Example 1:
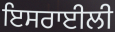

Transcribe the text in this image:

ਇਸਰਾਈਲੀ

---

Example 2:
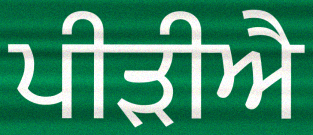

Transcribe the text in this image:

ਪੀੜੀਐ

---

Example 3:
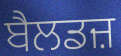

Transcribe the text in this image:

ਬੈਲਡਜ਼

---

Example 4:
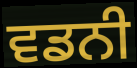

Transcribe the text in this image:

ਵਡਨੀ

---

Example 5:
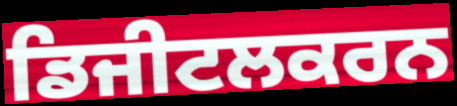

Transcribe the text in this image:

ਡਿਜੀਟਲਕਰਨ